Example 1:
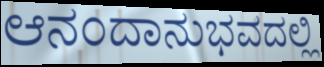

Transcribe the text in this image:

ಆನಂದಾನುಭವದಲ್ಲಿ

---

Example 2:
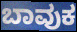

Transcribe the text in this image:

ಬಾವುಕ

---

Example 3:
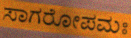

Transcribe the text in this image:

ಸಾಗರೋಪಮಃ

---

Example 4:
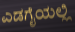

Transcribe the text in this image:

ಎಡಗೈಯಲ್ಲಿ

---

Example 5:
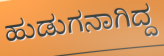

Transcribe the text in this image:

ಹುಡುಗನಾಗಿದ್ದ